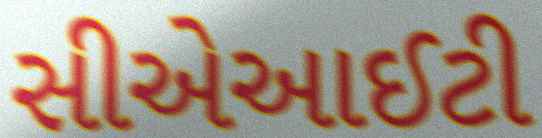
સીએઆઈટી